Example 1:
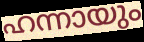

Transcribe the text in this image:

ഹന്നായും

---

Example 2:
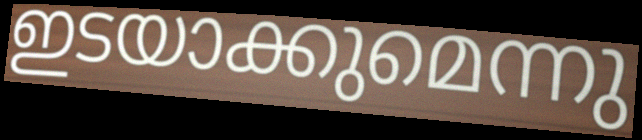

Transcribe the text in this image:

ഇടയാക്കുമെന്നു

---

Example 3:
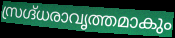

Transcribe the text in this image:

സ്രഗ്ദ്ധരാവൃത്തമാകും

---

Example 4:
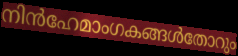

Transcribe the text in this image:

നിൻഹേമാംഗകങ്ങൾതോറും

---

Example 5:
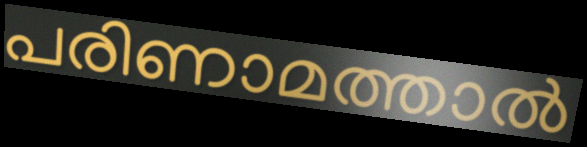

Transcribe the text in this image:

പരിണാമത്താൽ